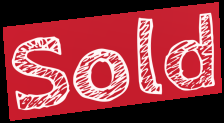
Sold